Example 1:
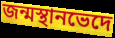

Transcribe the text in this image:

জন্মস্থানভেদে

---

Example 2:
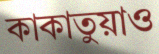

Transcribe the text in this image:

কাকাতুয়াও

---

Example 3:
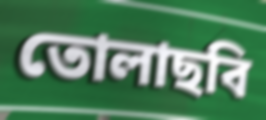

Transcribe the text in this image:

তোলাছবি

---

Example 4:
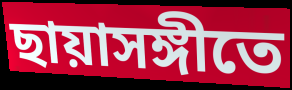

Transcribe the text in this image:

ছায়াসঙ্গীতে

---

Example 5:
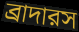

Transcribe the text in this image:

ব্রাদারস